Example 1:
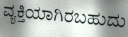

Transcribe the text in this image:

ವ್ಯಕ್ತಿಯಾಗಿರಬಹುದು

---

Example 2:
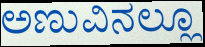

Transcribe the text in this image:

ಅಣುವಿನಲ್ಲೂ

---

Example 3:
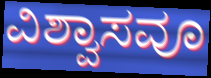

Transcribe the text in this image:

ವಿಶ್ವಾಸವೂ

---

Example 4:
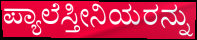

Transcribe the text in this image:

ಪ್ಯಾಲೆಸ್ತೀನಿಯರನ್ನು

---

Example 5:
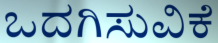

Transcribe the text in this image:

ಒದಗಿಸುವಿಕೆ